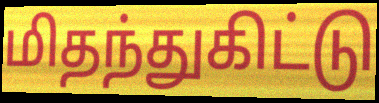
மிதந்துகிட்டு